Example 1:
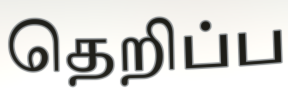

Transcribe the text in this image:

தெறிப்ப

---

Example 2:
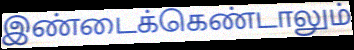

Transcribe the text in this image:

இண்டைக்கெண்டாலும்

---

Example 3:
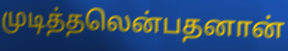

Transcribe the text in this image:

முடித்தலென்பதனான்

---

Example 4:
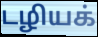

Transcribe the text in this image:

டழியக்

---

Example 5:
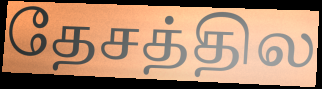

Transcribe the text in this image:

தேசத்தில